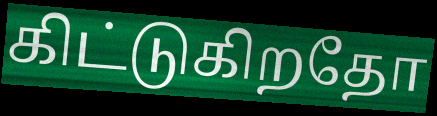
கிட்டுகிறதோ